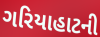
ગરિયાહાટની